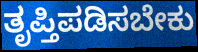
ತೃಪ್ತಿಪಡಿಸಬೇಕು